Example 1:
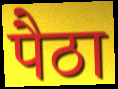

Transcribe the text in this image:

पैठा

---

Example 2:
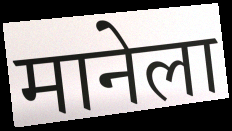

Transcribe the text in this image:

मानेला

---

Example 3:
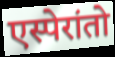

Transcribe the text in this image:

एस्पेरांतो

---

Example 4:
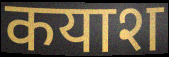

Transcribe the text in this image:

कयाश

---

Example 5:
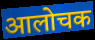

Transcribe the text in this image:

आलोचक